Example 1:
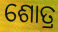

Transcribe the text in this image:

ଶୋତ୍ର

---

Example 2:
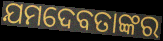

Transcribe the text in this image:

ଯମଦେବତାଙ୍କର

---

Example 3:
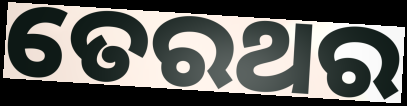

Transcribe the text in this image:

ତେରଥର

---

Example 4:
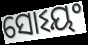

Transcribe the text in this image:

ସୋଽୟଂ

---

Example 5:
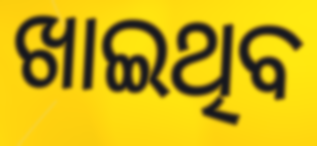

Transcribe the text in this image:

ଖାଇଥିବ